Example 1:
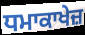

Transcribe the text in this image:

ਧਮਾਕਾਖੇਜ਼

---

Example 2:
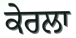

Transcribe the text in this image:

ਕੇਰਲਾ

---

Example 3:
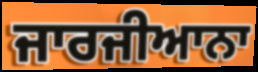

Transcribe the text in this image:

ਜਾਰਜੀਆਨਾ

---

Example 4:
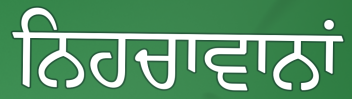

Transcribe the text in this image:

ਨਿਹਚਾਵਾਨਾਂ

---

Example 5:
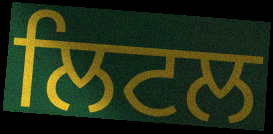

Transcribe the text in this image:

ਲਿਟਲ